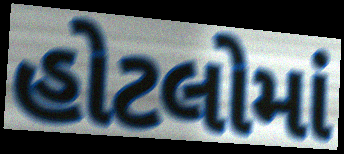
હોટલોમાં